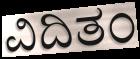
ವಿದಿತಂ